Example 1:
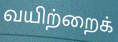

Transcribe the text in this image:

வயிற்றைக்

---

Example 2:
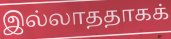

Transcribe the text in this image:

இல்லாததாகக்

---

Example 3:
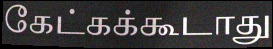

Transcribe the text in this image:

கேட்கக்கூடாது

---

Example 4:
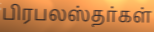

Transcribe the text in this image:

பிரபலஸ்தர்கள்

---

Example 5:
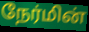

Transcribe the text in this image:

நேர்மின்